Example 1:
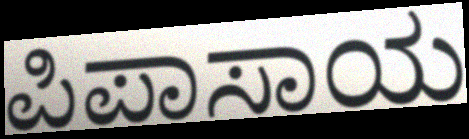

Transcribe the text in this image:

ಪಿಪಾಸಾಯ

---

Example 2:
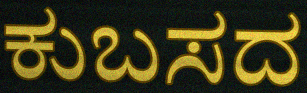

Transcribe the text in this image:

ಕುಬಸದ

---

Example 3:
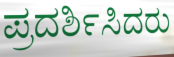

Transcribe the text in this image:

ಪ್ರದರ್ಶಿಸಿದರು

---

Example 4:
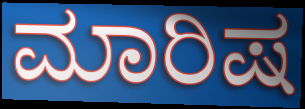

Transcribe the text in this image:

ಮಾರಿಷ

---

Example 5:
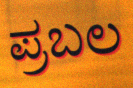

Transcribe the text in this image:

ಪ್ರಬಲ